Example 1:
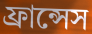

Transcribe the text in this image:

ফ্রান্সেস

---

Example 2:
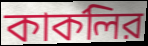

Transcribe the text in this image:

কার্কলির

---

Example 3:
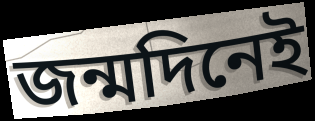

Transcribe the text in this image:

জন্মদিনেই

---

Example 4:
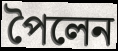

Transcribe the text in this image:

পৈলেন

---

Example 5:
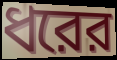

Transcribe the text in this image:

ধরের